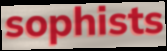
sophists